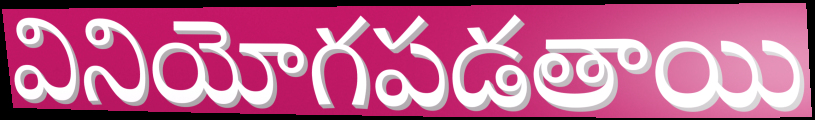
వినియోగపడతాయి